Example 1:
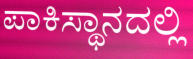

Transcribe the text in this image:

ಪಾಕಿಸ್ಥಾನದಲ್ಲಿ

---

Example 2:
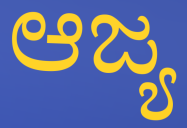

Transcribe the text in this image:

ಆಜ್ಯ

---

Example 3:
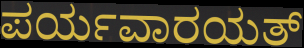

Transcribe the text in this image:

ಪರ್ಯವಾರಯತ್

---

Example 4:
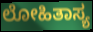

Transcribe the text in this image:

ಲೋಹಿತಾಸ್ಯ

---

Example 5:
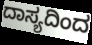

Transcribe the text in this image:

ದಾಸ್ಯದಿಂದ